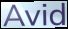
Avid